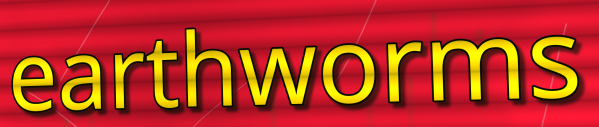
earthworms